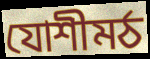
যোশীমঠ